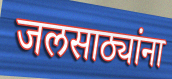
जलसाठ्यांना